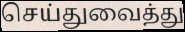
செய்துவைத்து